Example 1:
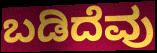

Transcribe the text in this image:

ಬಡಿದೆವು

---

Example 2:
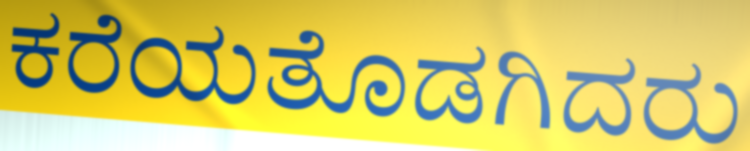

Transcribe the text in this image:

ಕರೆಯತೊಡಗಿದರು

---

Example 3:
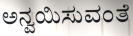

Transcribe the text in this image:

ಅನ್ವಯಿಸುವಂತೆ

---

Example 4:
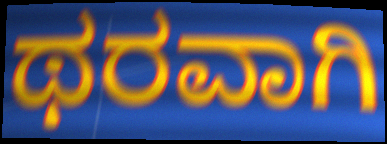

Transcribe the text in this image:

ಥರವಾಗಿ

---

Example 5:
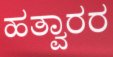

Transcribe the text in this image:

ಹತ್ವಾರರ